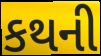
કથની